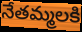
నేతమ్మలకి